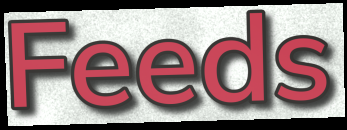
Feeds